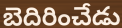
బెదిరించేడు